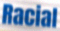
Racial